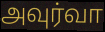
அவுர்வா